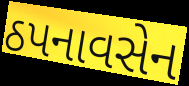
ઠપનાવસેન